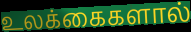
உலக்கைகளால்